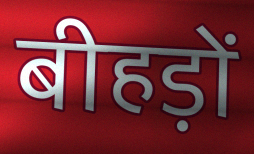
बीहड़ों